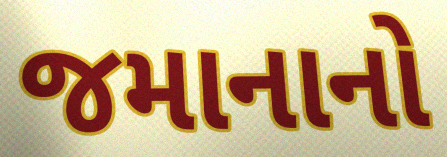
જમાનાનો